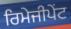
ਰਿਮੇਜੀਪੇਂਟ